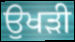
ਉਖੜੀ